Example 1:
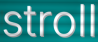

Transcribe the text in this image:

stroll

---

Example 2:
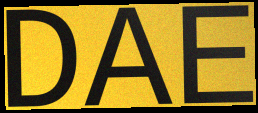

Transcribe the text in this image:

DAE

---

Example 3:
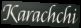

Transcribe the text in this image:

Karachchi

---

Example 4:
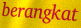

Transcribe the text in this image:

berangkat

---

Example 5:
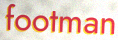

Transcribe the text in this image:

footman